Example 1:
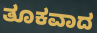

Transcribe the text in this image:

ತೂಕವಾದ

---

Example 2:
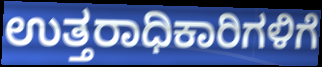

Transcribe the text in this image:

ಉತ್ತರಾಧಿಕಾರಿಗಳಿಗೆ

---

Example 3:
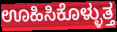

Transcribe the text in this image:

ಊಹಿಸಿಕೊಳ್ಳುತ್ತ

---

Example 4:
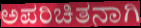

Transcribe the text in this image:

ಅಪರಿಚಿತನಾಗಿ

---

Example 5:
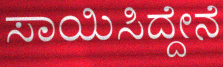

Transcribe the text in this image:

ಸಾಯಿಸಿದ್ದೇನೆ